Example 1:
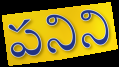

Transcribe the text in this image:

పనిని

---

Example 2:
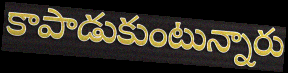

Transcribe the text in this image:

కాపాడుకుంటున్నారు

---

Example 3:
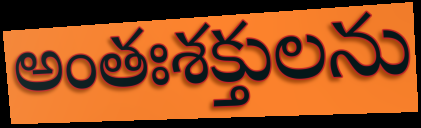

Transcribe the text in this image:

అంతఃశక్తులను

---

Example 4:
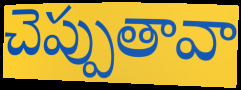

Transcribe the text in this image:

చెప్పుతావా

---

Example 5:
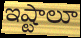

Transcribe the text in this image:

ఇష్టాలూ